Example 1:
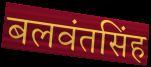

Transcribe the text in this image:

बलवंतसिंह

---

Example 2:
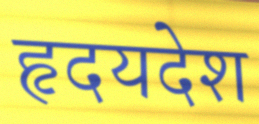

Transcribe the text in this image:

हृदयदेश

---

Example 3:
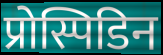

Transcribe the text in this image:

प्रोस्पिडिन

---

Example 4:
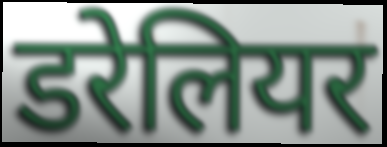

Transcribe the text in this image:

डरेलियर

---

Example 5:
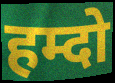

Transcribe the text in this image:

हम्दो